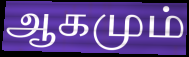
ஆகமும்